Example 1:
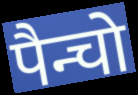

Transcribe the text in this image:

पैन्चो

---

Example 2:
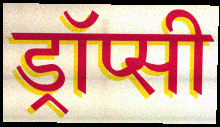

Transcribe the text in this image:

ड्रॉप्सी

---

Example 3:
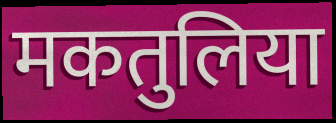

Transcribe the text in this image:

मकतुलिया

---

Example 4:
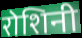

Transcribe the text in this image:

रोशिनी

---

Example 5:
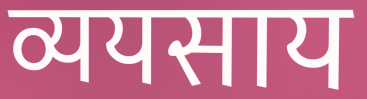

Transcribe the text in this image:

व्ययसाय